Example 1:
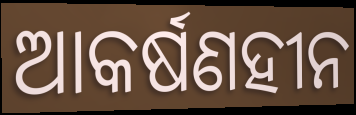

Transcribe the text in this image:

ଆକର୍ଷଣହୀନ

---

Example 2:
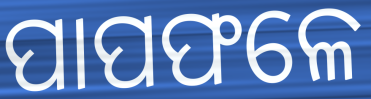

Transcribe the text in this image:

ପାପଫଳେ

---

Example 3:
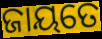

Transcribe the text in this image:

ଜାୟତେ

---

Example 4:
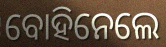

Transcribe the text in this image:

ବୋହିନେଲେ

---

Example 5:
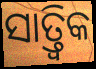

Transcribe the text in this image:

ସାତ୍ତ୍ବିକ